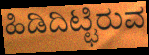
ಹಿಡಿದಿಟ್ಟಿರುವ